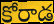
కోరాడ